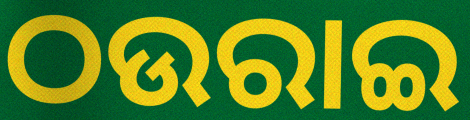
ଠଉରାଇ